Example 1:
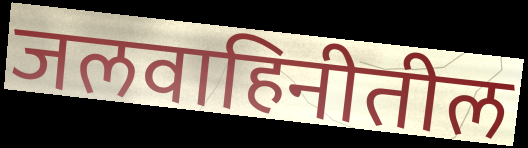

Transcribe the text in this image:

जलवाहिनीतील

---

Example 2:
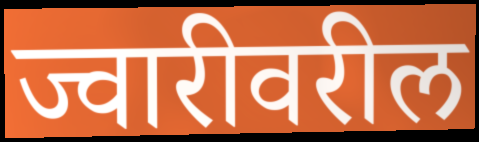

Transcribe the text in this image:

ज्वारीवरील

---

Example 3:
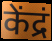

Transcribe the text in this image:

केंद्रं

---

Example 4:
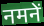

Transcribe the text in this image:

नमनें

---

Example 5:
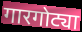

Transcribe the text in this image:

गारगोट्या